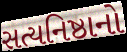
સત્યનિષ્ઠાનો